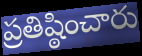
ప్రతిష్ఠించారు